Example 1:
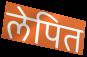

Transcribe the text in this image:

लेपित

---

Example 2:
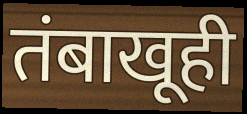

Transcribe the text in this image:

तंबाखूही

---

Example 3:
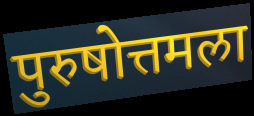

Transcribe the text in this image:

पुरुषोत्तमला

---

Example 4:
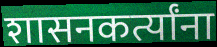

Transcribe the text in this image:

शासनकर्त्यांना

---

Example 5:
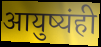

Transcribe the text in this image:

आयुष्यंही